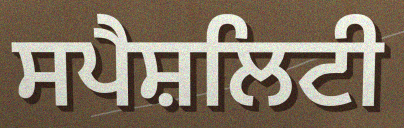
ਸਪੈਸ਼ਲਿਟੀ